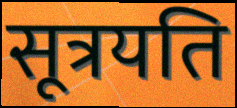
सूत्रयति